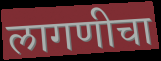
लागणीचा